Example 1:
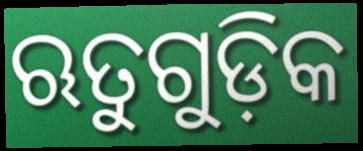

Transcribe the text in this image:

ଋତୁଗୁଡ଼ିକ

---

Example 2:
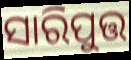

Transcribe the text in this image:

ସାରିପୁତ୍ତ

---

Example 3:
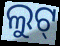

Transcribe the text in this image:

ଲୁଟ୍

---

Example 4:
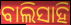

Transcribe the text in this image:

ବାଲିସାହି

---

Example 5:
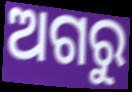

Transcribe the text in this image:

ଅଗରୁ